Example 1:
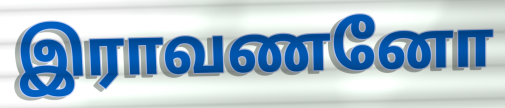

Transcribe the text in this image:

இராவணனோ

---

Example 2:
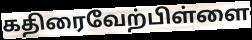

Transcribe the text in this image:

கதிரைவேற்பிள்ளை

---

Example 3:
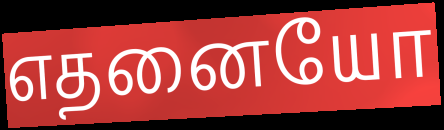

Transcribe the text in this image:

எதனையோ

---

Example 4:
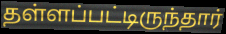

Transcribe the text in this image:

தள்ளப்பட்டிருந்தார்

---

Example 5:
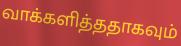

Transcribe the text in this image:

வாக்களித்ததாகவும்